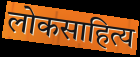
लोकसाहित्य